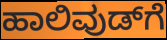
ಹಾಲಿವುಡ್‌ಗೆ